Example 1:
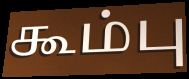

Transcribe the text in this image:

கூம்பு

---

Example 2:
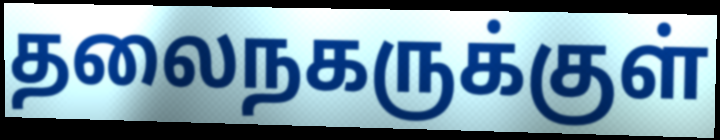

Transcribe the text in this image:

தலைநகருக்குள்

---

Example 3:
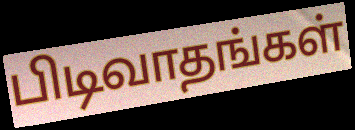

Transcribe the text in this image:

பிடிவாதங்கள்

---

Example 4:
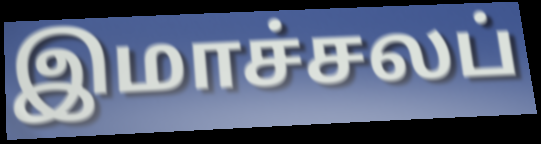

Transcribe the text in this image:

இமாச்சலப்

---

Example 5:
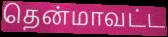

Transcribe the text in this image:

தென்மாவட்ட